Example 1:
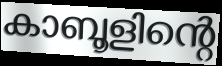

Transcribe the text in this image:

കാബൂളിന്റെ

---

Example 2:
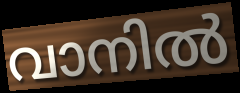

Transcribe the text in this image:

വാനിൽ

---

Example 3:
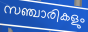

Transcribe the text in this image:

സഞ്ചാരികളും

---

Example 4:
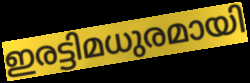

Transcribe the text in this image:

ഇരട്ടിമധുരമായി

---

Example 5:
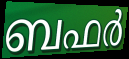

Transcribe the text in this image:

ബഫർ